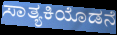
ಸಾತ್ಯಕಿಯೊಡನೆ